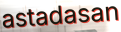
astadasan